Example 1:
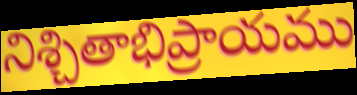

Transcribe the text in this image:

నిశ్చితాభిప్రాయము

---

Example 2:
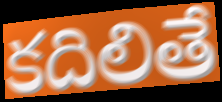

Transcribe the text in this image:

కదిలితే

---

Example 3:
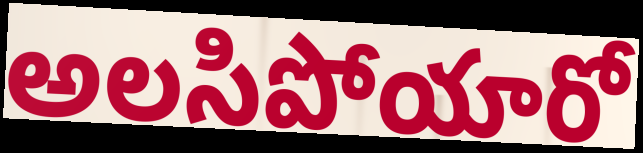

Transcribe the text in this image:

అలసిపోయారో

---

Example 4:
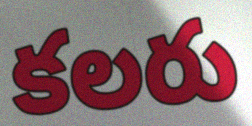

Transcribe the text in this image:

కలరు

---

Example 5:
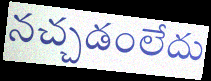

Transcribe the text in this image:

నచ్చడంలేదు